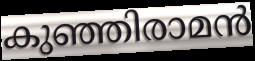
കുഞ്ഞിരാമൻ